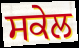
ਸਕੇਲ